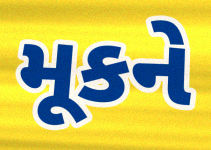
મૂકને